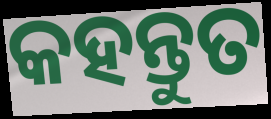
କହନ୍ତୁତ